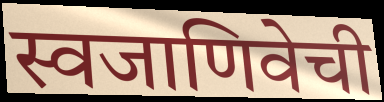
स्वजाणिवेची